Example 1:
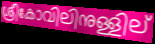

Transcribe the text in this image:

ശ്രീകോവിലിനുള്ളില്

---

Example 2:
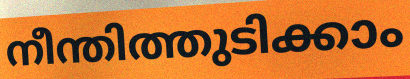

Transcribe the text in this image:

നീന്തിത്തുടിക്കാം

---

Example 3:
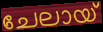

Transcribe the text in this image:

ചേലായ്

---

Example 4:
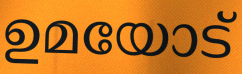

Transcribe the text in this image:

ഉമയോട്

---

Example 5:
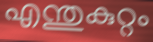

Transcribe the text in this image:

എന്തുകുറ്റം